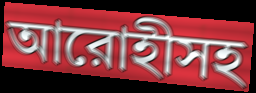
আরোহীসহ